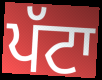
ਪੱਟਾ